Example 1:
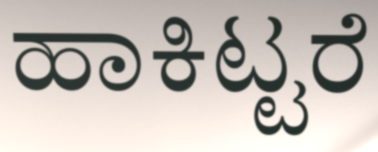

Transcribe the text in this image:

ಹಾಕಿಟ್ಟರೆ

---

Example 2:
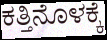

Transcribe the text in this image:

ಕತ್ತಿನೊಳಕ್ಕೆ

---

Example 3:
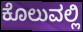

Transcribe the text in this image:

ಕೊಲುವಲ್ಲಿ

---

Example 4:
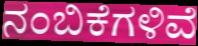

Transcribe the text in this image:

ನಂಬಿಕೆಗಳಿವೆ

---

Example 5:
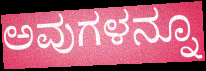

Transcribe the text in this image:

ಅವುಗಳನ್ನೂ